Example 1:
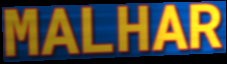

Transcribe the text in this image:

MALHAR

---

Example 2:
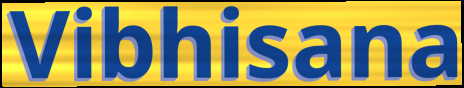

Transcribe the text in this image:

Vibhisana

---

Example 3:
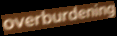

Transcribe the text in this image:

overburdening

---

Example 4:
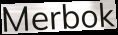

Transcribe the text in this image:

Merbok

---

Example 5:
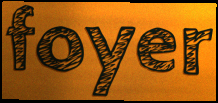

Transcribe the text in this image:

foyer